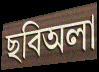
ছবিঅলা